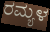
ರಮ್ಯಳ